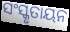
ସଂସ୍କୃତାୟନ